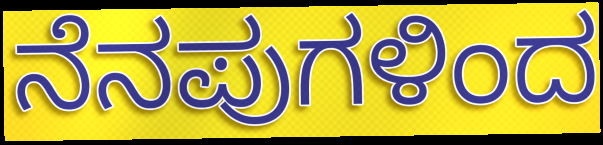
ನೆನಪುಗಳಿಂದ